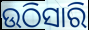
ଉଠିସାରି